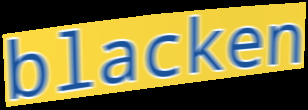
blacken